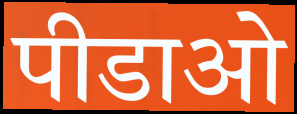
पीडाओ